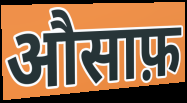
औसाफ़